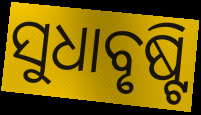
ସୁଧାବୃଷ୍ଟି